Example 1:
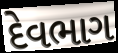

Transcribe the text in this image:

દેવભાગ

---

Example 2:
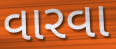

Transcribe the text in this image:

વારવા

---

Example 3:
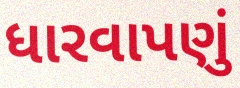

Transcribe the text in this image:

ધારવાપણું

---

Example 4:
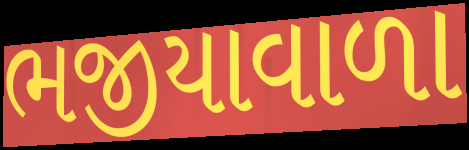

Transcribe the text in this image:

ભજીયાવાળા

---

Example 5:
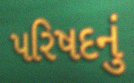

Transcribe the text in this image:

પરિષદનું